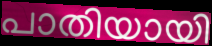
പാതിയായി